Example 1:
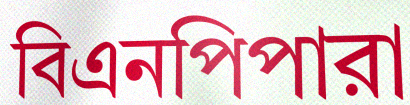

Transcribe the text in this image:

বিএনপিপারা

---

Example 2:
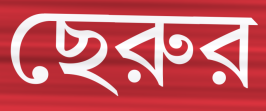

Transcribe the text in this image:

ছেরুর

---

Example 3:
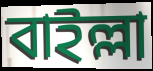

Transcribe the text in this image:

বাইল্লা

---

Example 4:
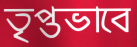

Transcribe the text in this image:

তৃপ্তভাবে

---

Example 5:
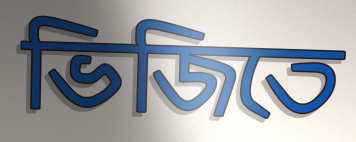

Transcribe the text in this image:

ভিজিতে